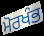
ਮੋਰਖੰਭ